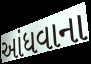
આંધવાના